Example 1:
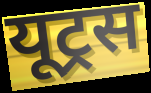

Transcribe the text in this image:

यूट्रस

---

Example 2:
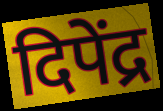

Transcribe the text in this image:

दिपेंद्र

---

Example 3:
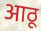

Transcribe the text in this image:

आठू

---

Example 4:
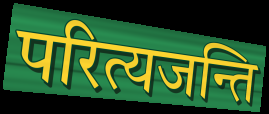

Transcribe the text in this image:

परित्यजन्ति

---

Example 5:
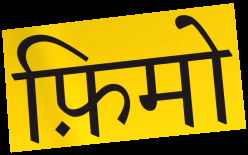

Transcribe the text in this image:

फ़िमो